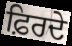
ਫ਼ਿਰਦੇ